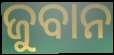
ଜୁବାନ